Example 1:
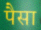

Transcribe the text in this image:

पैसा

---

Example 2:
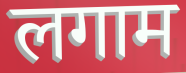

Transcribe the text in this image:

लगाम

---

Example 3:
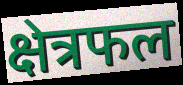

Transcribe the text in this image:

क्षेत्रफल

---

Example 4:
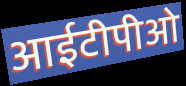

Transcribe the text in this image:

आईटीपीओ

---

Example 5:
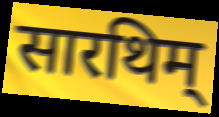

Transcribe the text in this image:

सारथिम्